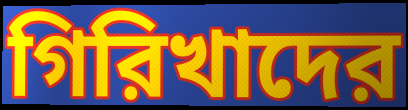
গিরিখাদের